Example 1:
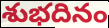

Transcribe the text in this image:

శుభదినం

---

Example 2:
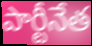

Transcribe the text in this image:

పార్టీనేత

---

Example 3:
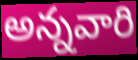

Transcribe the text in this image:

అన్నవారి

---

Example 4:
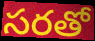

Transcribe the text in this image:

సరతో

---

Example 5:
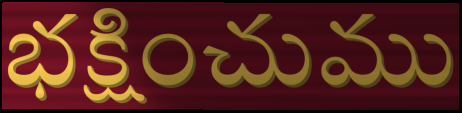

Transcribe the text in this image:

భక్షించుము